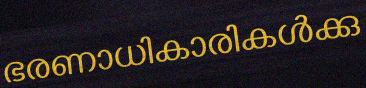
ഭരണാധികാരികൾക്കു